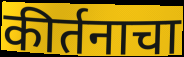
कीर्तनाचा